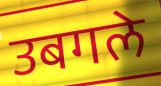
उबगले